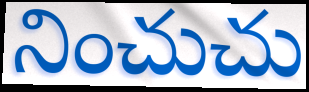
నించుచు